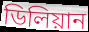
ডিলিয়ান